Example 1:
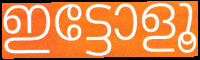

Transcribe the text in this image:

ഇട്ടോളൂ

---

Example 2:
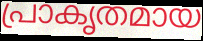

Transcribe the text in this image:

പ്രാകൃതമായ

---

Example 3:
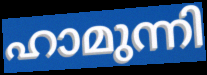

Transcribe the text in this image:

ഹാമുന്നി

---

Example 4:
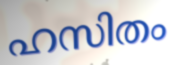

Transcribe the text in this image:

ഹസിതം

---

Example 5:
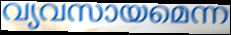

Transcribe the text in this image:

വ്യവസായമെന്ന